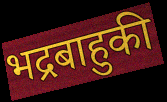
भद्रबाहुकी